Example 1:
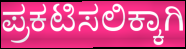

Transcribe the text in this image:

ಪ್ರಕಟಿಸಲಿಕ್ಕಾಗಿ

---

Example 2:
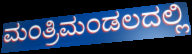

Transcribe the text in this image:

ಮಂತ್ರಿಮಂಡಲದಲ್ಲಿ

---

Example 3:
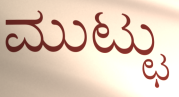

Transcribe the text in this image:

ಮುಟ್ಟು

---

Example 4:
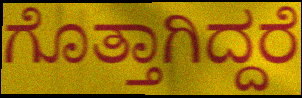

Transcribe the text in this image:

ಗೊತ್ತಾಗಿದ್ದರೆ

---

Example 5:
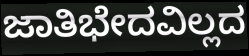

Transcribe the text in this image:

ಜಾತಿಭೇದವಿಲ್ಲದ